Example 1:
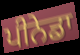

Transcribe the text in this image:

ਪੀਨੇਡਾ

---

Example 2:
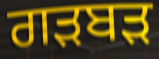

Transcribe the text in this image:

ਗੜਬੜ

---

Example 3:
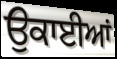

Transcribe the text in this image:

ਉਕਾਈਆਂ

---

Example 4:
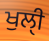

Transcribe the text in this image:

ਖੁਲੀੑ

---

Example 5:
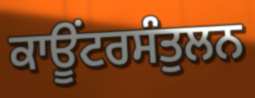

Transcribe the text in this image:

ਕਾਊਂਟਰਸੰਤੁਲਨ